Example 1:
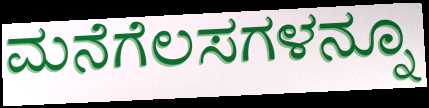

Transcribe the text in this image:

ಮನೆಗೆಲಸಗಳನ್ನೂ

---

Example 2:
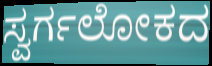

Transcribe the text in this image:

ಸ್ವರ್ಗಲೋಕದ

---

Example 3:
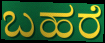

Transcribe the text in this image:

ಬಹರೆ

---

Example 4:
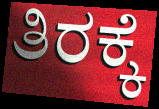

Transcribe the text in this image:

ತಿರಕ್ಕೆ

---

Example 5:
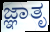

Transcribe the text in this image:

ಜ್ಞಾತೃ